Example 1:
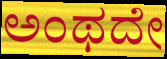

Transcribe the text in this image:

ಅಂಥದೇ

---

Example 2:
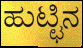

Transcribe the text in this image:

ಹುಟ್ಟಿನ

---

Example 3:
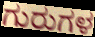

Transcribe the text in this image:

ಗುರುಗಳ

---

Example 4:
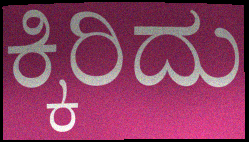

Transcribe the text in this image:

ಕ್ಕಿರಿದು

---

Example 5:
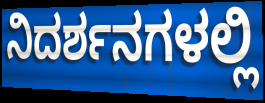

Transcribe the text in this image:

ನಿದರ್ಶನಗಳಲ್ಲಿ